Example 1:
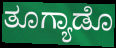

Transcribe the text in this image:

ತೂಗ್ಯಾಡೊ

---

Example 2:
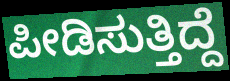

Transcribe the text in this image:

ಪೀಡಿಸುತ್ತಿದ್ದೆ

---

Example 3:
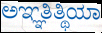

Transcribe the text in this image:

ಅಞ್ಞತಿತ್ಥಿಯಾ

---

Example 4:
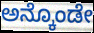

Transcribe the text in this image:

ಅನ್ಕೊಂಡೇ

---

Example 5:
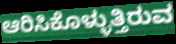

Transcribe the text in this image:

ಆರಿಸಿಕೊಳ್ಳುತ್ತಿರುವ